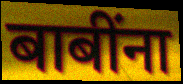
बाबींना